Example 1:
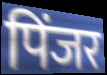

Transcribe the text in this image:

पिंजर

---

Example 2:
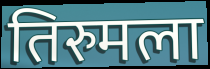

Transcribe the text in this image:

तिरुमला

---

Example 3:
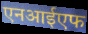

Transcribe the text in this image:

एनआईएफ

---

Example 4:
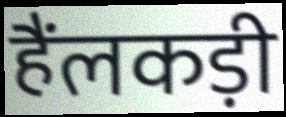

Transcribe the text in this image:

हैंलकड़ी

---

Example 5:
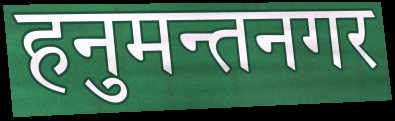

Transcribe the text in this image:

हनुमन्तनगर